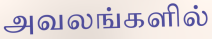
அவலங்களில்